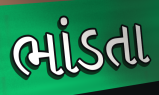
ભાંડતા